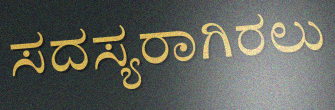
ಸದಸ್ಯರಾಗಿರಲು